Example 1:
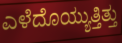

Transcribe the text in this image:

ಎಳೆದೊಯ್ಯುತ್ತಿತ್ತು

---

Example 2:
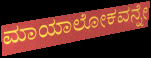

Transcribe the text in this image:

ಮಾಯಾಲೋಕವನ್ನೇ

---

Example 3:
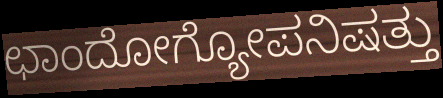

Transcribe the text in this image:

ಛಾಂದೋಗ್ಯೋಪನಿಷತ್ತು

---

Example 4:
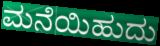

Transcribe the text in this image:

ಮನೆಯಿಹುದು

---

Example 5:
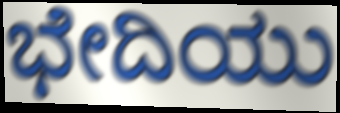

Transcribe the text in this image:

ಭೇದಿಯು